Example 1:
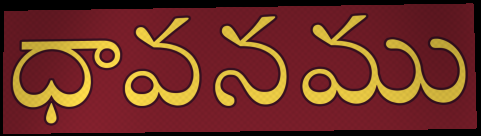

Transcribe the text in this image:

ధావనము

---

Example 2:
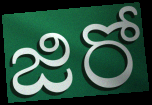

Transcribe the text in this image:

జిరో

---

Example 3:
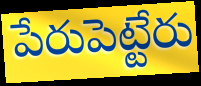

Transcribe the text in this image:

పేరుపెట్టేరు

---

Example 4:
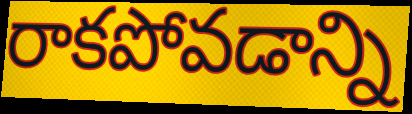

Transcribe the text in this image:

రాకపోవడాన్ని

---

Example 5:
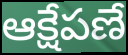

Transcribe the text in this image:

ఆక్షేపణే